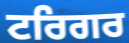
ਟਰਿਗਰ